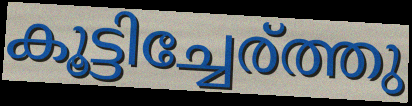
കൂട്ടിച്ചേര്ത്തു